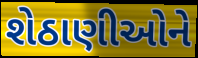
શેઠાણીઓને